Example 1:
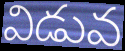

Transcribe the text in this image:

విడువ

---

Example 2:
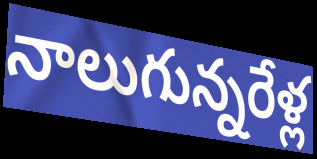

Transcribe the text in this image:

నాలుగున్నరేళ్ల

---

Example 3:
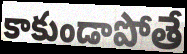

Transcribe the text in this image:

కాకుండాపోతే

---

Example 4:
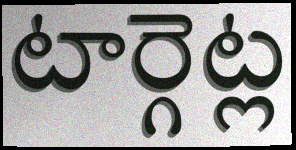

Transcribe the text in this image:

టార్గెట్ల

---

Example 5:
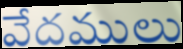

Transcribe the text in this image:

వేదములు